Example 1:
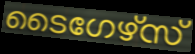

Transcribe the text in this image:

ടൈഗേഴ്സ്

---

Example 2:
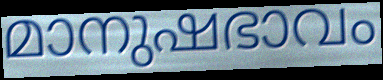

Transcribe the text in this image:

മാനുഷഭാവം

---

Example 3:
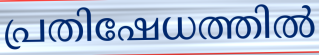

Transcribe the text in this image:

പ്രതിഷേധത്തിൽ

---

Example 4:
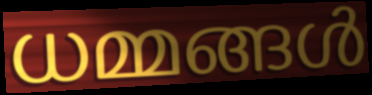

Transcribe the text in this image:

ധമ്മങ്ങൾ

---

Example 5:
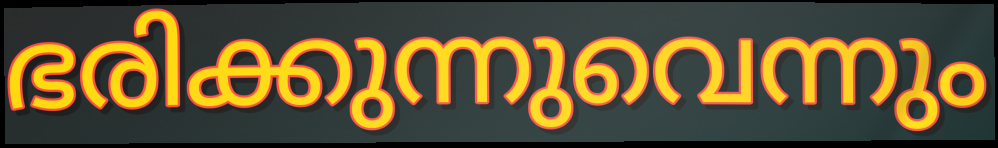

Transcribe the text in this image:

ഭരിക്കുന്നുവെന്നും